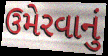
ઉમેરવાનું